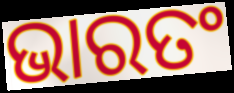
ଭାରତଂ